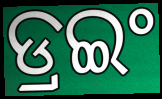
ଡ୍ରଇଂ